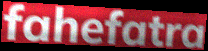
fahefatra